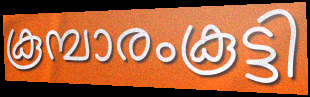
കൂമ്പാരംകൂട്ടി